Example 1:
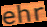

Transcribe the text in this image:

ehr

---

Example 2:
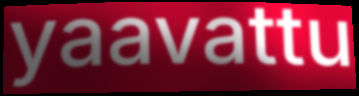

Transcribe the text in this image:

yaavattu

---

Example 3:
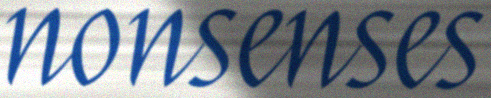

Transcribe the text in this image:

nonsenses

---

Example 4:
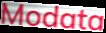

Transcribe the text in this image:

Modata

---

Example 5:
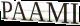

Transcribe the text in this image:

PAAMI